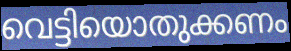
വെട്ടിയൊതുക്കണം